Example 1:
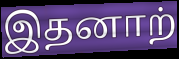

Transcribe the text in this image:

இதனாற்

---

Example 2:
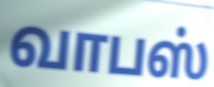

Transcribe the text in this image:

வாபஸ்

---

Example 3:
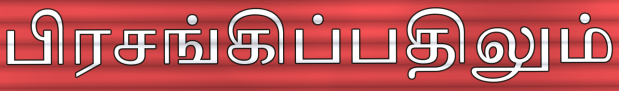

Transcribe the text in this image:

பிரசங்கிப்பதிலும்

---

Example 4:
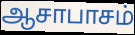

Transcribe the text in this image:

ஆசாபாசம்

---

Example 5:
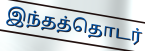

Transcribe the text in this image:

இந்தத்தொடர்